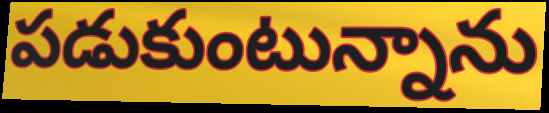
పడుకుంటున్నాను